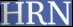
HRN